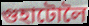
গুহাটোলৈ